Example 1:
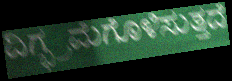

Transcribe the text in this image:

ದಿಗ್ಭ್ರಮೆಗೊಳಿಸುತ್ತದೆ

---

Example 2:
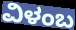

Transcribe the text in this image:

ವಿಳಂಬ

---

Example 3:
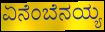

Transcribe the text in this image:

ಏನೆಂಬೆನಯ್ಯ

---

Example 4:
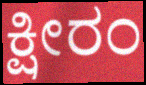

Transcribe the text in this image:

ಕ್ಷೀರಂ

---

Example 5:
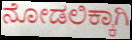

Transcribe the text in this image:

ನೋಡಲಿಕ್ಕಾಗಿ